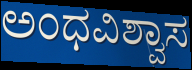
ಅಂಧವಿಶ್ವಾಸ